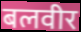
बलवीर